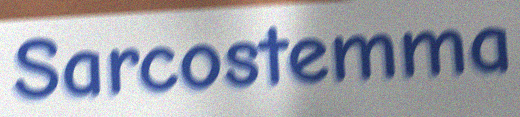
Sarcostemma